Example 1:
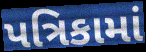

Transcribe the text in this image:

પત્રિકામાં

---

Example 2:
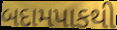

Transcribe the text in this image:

બદામપાકથી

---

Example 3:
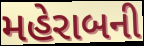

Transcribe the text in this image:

મહેરાબની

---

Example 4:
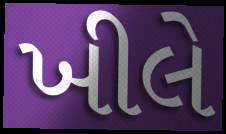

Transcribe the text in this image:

ખીલે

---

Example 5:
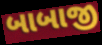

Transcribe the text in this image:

બાબાજી